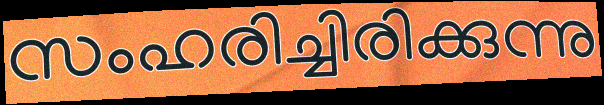
സംഹരിച്ചിരിക്കുന്നു